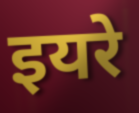
इयरे